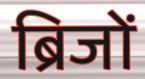
ब्रिजों